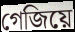
গেজিয়ে